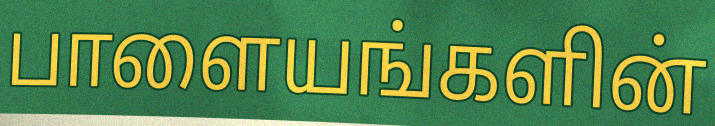
பாளையங்களின்